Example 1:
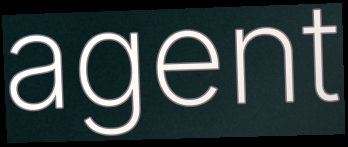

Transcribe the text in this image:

agent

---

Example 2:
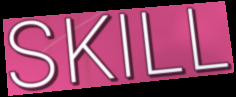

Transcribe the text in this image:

SKILL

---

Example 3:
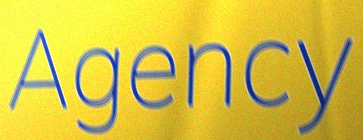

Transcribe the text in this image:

Agency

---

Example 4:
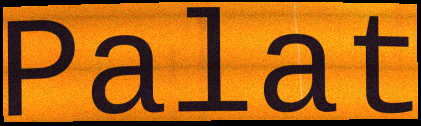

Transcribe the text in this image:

Palat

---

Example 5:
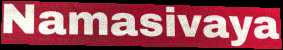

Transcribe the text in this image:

Namasivaya